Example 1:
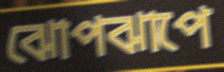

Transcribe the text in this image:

ঝোপঝাপে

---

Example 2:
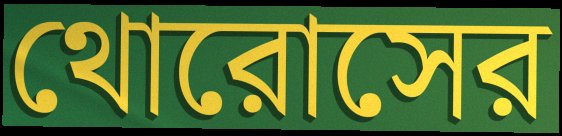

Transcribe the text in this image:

থোরোসের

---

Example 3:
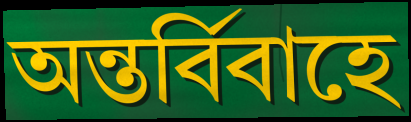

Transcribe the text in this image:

অন্তর্বিবাহে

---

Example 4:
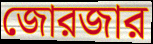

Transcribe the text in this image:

জোরজার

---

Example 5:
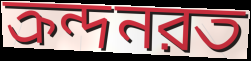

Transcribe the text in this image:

ক্রন্দনরত